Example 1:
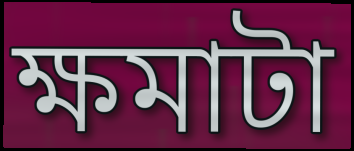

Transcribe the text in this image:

ক্ষমাটা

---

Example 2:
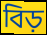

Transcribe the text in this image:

বিড়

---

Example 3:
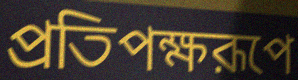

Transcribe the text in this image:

প্রতিপক্ষরূপে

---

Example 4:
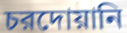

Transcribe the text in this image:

চরদোয়ানি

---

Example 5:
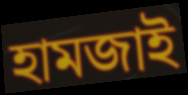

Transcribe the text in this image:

হামজাই